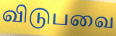
விடுபவை